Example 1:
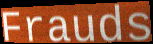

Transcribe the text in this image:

Frauds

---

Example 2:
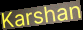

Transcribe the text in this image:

Karshan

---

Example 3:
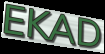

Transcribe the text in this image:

EKAD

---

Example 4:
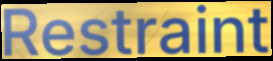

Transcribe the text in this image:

Restraint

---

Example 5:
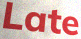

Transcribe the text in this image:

Late